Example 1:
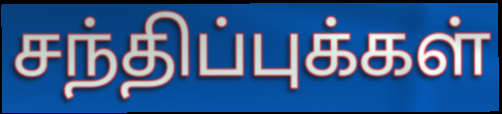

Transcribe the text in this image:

சந்திப்புக்கள்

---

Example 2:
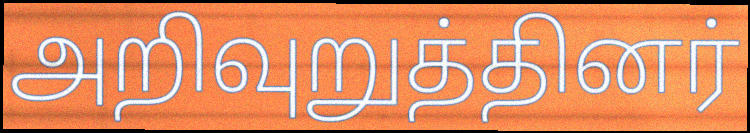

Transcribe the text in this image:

அறிவுறுத்தினர்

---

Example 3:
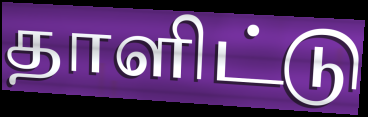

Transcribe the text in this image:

தாளிட்டு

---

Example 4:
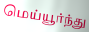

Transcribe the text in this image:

மெய்யூர்ந்து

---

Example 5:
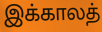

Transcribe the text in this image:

இக்காலத்